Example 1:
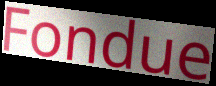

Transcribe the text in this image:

Fondue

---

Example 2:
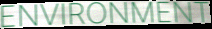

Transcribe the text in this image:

ENVIRONMENT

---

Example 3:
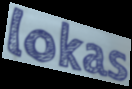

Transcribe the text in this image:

lokas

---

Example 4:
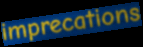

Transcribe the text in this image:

imprecations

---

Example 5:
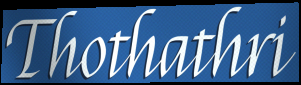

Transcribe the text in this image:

Thothathri